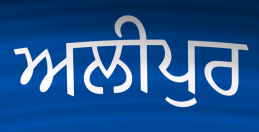
ਅਲੀਪੁਰ